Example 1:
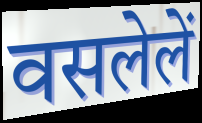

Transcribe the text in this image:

वसलेलें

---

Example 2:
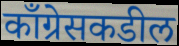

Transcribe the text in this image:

काँग्रेसकडील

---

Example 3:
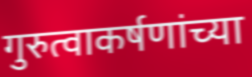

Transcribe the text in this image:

गुरुत्वाकर्षणांच्या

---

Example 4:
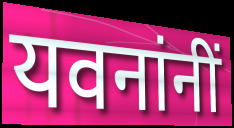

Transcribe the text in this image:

यवनांनीं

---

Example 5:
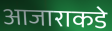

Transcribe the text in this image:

आजाराकडे